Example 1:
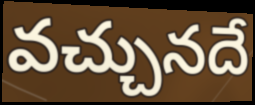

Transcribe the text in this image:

వచ్చునదే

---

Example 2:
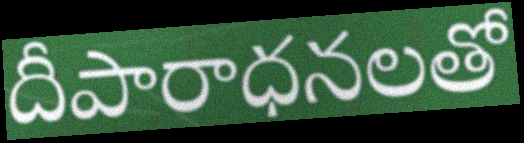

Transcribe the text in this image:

దీపారాధనలతో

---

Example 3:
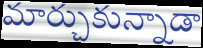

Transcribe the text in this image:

మార్చుకున్నాడా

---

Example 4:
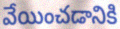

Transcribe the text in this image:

వేయించడానికి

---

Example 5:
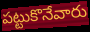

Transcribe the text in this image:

పట్టుకొనేవారు